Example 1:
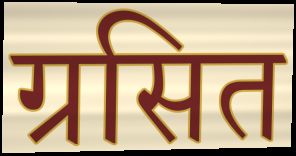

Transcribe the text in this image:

ग्रसित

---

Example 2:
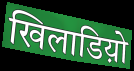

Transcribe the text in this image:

खिलाडिय़ो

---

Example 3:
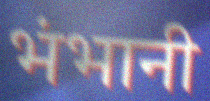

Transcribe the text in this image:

भंभानी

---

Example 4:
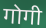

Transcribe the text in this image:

गोगी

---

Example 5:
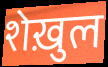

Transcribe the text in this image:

शेख़ुल